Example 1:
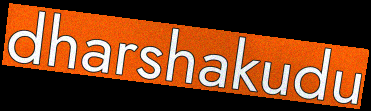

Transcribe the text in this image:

dharshakudu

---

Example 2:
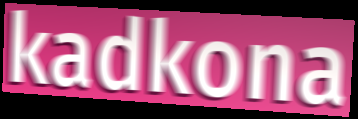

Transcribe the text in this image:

kadkona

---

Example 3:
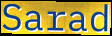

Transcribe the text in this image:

Sarad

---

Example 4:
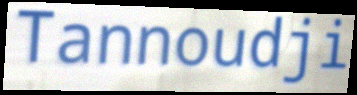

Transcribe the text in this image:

Tannoudji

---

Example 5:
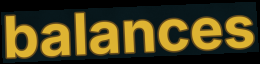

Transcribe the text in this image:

balances